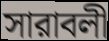
সারাবলী